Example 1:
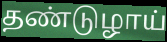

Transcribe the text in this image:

தண்டுழாய்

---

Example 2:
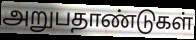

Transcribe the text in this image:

அறுபதாண்டுகள்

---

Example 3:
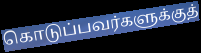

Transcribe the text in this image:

கொடுப்பவர்களுக்குத்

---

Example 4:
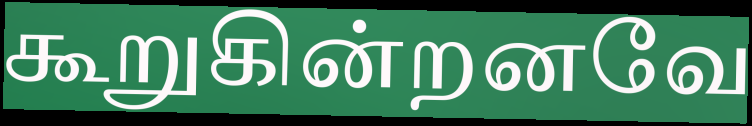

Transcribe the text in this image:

கூறுகின்றனவே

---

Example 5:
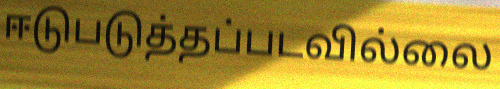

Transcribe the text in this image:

ஈடுபடுத்தப்படவில்லை